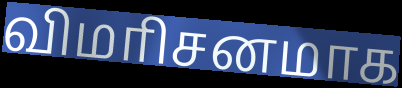
விமரிசனமாக